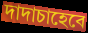
দাদাচাহেবে